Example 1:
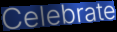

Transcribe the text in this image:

Celebrate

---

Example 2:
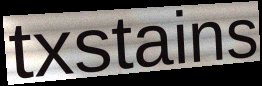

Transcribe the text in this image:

txstains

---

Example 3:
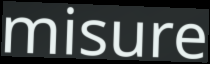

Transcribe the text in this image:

misure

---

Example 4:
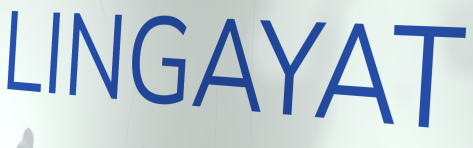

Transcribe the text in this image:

LINGAYAT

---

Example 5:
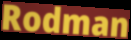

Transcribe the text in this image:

Rodman